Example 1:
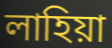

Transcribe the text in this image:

লাহিয়া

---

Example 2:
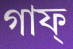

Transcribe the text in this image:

গাফ্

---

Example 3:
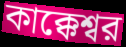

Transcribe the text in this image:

কাক্কেশ্বর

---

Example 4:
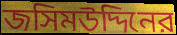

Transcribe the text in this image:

জসিমউদ্দিনের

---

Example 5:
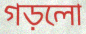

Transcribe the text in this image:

গড়লো